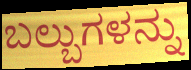
ಬಲ್ಬುಗಳನ್ನು